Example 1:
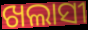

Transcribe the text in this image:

ଖଲାସୀ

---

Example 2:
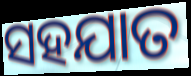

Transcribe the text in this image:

ସହଯାତ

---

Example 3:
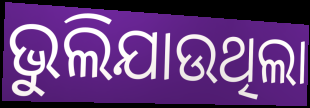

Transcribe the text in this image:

ଭୁଲିଯାଉଥିଲା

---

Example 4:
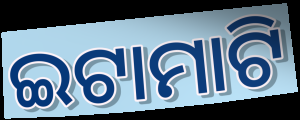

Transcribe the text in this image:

ଇଟାମାଟି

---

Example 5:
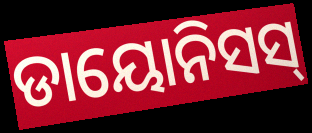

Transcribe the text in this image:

ଡାୟୋନିସସ୍